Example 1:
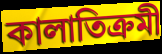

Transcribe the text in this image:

কালাতিক্রমী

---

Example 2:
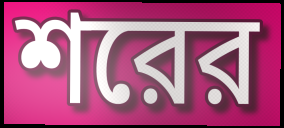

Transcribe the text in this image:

শরের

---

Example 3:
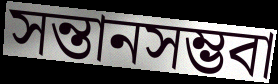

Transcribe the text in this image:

সন্তানসম্ভবা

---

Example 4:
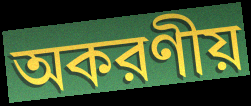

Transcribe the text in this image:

অকরণীয়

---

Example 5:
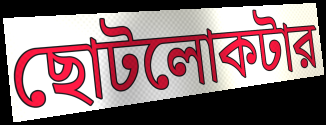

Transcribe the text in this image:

ছোটলোকটার